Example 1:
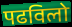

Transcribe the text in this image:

पढविलो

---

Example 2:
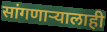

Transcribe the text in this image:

सांगणाऱ्यालाही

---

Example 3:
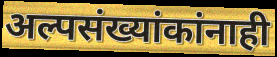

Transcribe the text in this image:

अल्पसंख्यांकांनाही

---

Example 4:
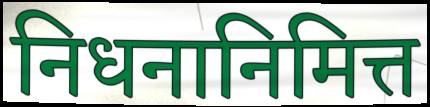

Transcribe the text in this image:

निधनानिमित्त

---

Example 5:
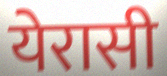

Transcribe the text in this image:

येरासी